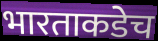
भारताकडेच